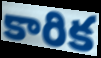
కారిక